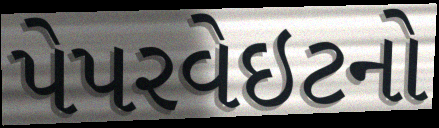
પેપરવેઇટનો